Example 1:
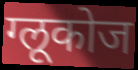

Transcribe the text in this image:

ग्लूकोज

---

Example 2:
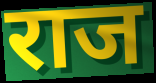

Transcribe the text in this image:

राज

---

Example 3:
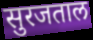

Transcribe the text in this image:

सुरजताल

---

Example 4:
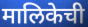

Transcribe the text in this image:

मालिकेची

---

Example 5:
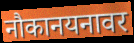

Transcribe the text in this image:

नौकानयनावर